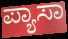
ಪ್ಯಾಸಾ